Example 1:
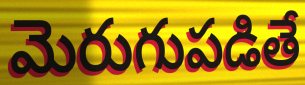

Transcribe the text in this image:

మెరుగుపడితే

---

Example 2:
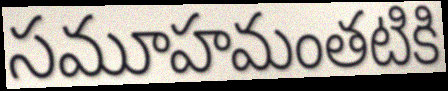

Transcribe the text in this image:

సమూహమంతటికి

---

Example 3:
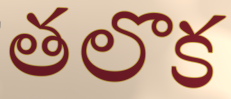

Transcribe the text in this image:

తలొక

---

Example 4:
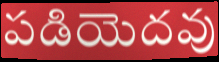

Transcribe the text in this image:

పడియెదవు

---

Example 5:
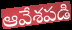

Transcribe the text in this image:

ఆవేశపడి